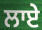
ਲਾਏ